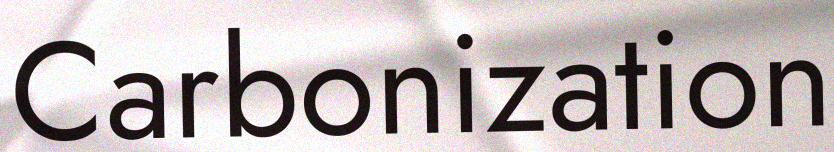
Carbonization